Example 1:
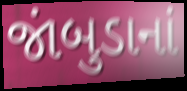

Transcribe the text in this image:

જાંબુડાનાં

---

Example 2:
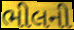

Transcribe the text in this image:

ભીલની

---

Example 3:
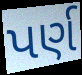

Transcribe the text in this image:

પર્ણ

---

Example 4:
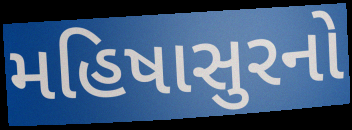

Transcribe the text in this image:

મહિષાસુરનો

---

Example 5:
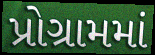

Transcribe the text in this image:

પ્રોગ્રામમાં